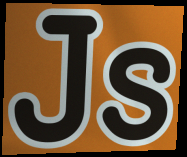
Js